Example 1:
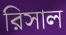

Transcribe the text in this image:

রিসাল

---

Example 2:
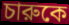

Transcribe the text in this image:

চারুকে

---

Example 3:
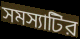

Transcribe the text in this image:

সমস্যাটির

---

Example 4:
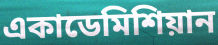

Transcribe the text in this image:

একাডেমিশিয়ান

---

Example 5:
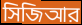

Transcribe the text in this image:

সিজিআর